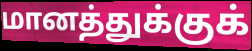
மானத்துக்குக்